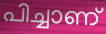
പിച്ചാണ്